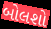
બોલશો